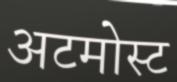
अटमोस्ट